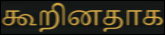
கூறினதாக